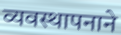
व्यवस्थापनाने